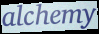
alchemy